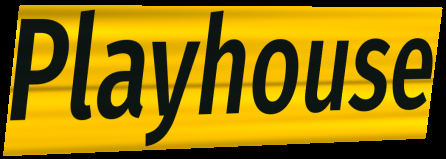
Playhouse